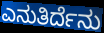
ಎನುತಿರ್ದೆನು